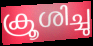
ക്രൂശിച്ചു